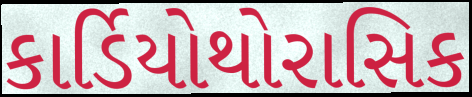
કાર્ડિયોથોરાસિક